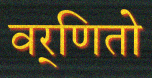
वर्णितो